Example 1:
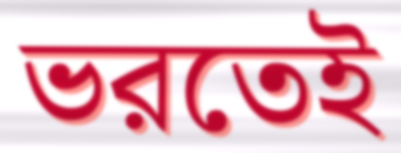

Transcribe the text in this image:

ভরতেই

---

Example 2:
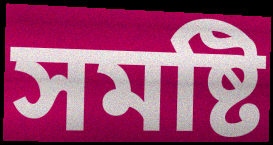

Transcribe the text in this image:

সমষ্টি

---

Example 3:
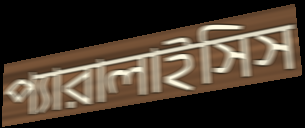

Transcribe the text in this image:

প্যারালাইসিস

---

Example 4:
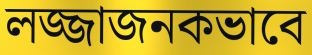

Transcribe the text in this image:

লজ্জাজনকভাবে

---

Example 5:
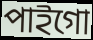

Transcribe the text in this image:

পাইগো